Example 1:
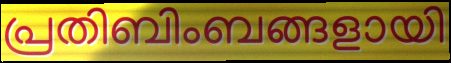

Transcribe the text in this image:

പ്രതിബിംബങ്ങളായി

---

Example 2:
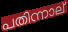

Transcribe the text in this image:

പതിന്നാല്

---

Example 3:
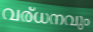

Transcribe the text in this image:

വര്ധനവും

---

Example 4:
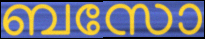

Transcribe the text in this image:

ബസോ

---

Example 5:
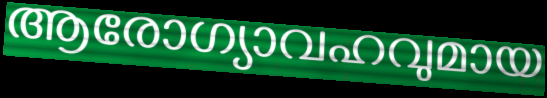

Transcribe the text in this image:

ആരോഗ്യാവഹവുമായ